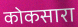
कोकसारा